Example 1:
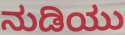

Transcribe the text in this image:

ನುಡಿಯು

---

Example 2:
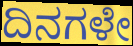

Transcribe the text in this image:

ದಿನಗಳೇ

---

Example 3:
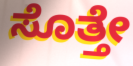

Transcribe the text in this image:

ಸೊತ್ತೇ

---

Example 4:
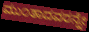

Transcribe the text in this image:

ಮುಂತಾದವರನ್ನೇ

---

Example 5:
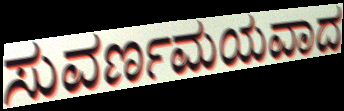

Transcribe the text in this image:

ಸುವರ್ಣಮಯವಾದ